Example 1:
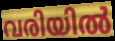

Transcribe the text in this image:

വരിയിൽ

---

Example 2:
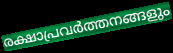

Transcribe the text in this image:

രക്ഷാപ്രവർത്തനങ്ങളും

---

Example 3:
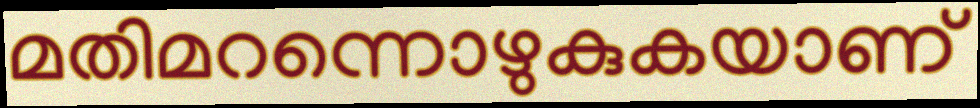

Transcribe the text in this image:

മതിമറന്നൊഴുകുകയാണ്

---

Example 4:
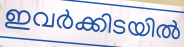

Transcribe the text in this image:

ഇവർക്കിടയിൽ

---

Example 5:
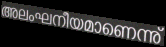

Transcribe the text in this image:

അലംഘനീയമാണെന്നു്